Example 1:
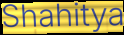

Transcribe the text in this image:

Shahitya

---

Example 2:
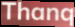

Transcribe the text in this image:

Thanq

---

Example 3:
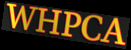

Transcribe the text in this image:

WHPCA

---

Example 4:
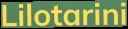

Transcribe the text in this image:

Lilotarini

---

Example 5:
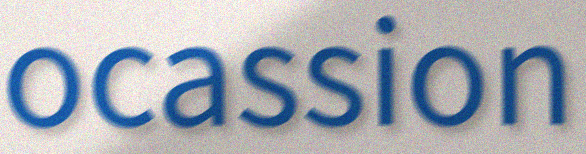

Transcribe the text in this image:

ocassion